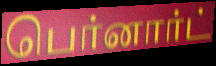
பெர்னார்ட்